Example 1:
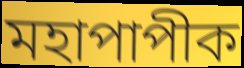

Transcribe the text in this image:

মহাপাপীক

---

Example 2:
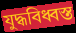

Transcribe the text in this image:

যুদ্ধবিধ্বস্ত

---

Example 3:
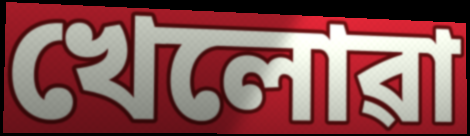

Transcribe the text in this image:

খেলোৱা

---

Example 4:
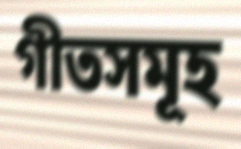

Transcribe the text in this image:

গীতসমূহ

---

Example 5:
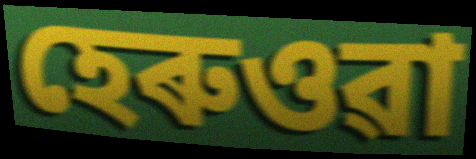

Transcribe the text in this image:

হেৰুওৱা